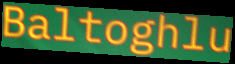
Baltoghlu